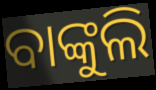
ବାଙ୍କୁଲି